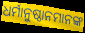
ଧର୍ମାନୁଷ୍ଠାନମାନଙ୍କ